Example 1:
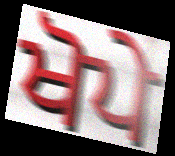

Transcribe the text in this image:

ਖੋਪੇ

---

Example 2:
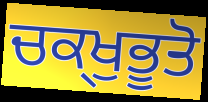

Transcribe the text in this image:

ਚਕ੍ਖੁਭੂਤੋ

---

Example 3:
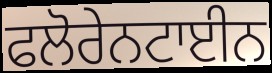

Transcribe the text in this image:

ਫਲੋਰੇਨਟਾਈਨ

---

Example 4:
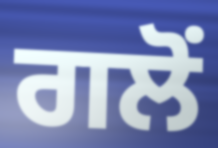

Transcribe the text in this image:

ਗਲੋਂ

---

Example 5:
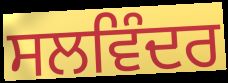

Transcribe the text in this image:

ਸਲਵਿੰਦਰ